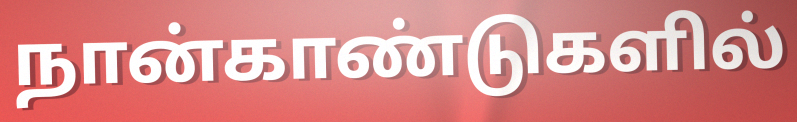
நான்காண்டுகளில்